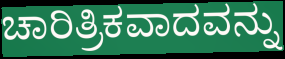
ಚಾರಿತ್ರಿಕವಾದವನ್ನು